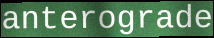
anterograde